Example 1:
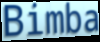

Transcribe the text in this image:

Bimba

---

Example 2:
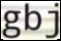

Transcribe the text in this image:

gbj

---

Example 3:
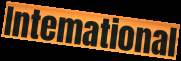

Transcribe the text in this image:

Intemational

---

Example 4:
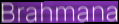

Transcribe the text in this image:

Brahmana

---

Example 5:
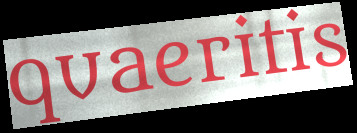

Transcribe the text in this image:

quaeritis